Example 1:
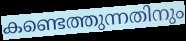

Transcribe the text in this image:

കണ്ടെത്തുന്നതിനും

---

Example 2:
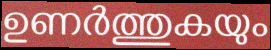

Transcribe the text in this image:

ഉണർത്തുകയും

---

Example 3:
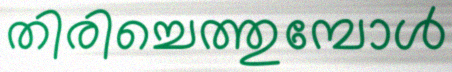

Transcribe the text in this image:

തിരിച്ചെത്തുമ്പോൾ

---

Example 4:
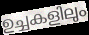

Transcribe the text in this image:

ഉച്ചകളിലും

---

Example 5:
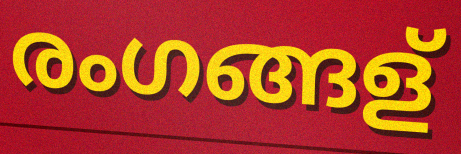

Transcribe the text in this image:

രംഗങ്ങള്